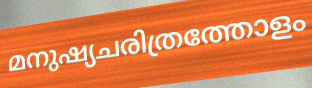
മനുഷ്യചരിത്രത്തോളം